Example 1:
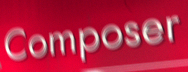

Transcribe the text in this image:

Composer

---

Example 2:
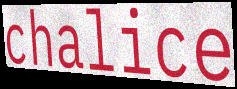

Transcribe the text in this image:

chalice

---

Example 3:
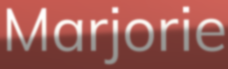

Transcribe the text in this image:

Marjorie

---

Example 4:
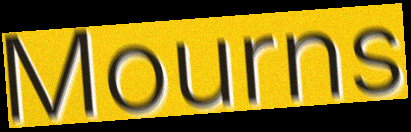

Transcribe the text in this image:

Mourns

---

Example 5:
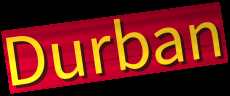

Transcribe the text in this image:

Durban